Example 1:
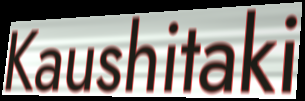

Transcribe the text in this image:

Kaushitaki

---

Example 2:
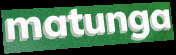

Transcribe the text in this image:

matunga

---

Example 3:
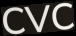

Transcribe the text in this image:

CVC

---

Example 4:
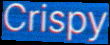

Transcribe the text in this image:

Crispy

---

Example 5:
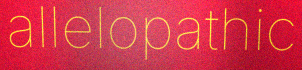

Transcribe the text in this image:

allelopathic